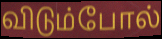
விடும்போல்